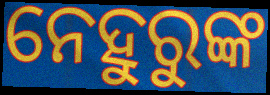
ନେହୁରୁଙ୍କ